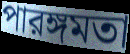
পারঙ্গমতা